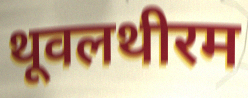
थूवलथीरम